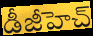
డీజీహెచ్